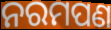
ନରମପଣ